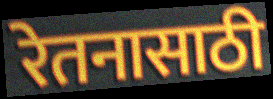
रेतनासाठी